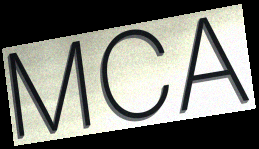
MCA